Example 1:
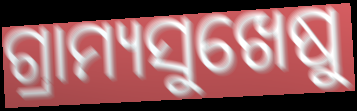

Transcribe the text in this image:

ଗ୍ରାମ୍ୟସୁଖେଷୁ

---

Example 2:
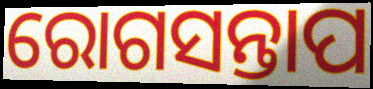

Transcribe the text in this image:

ରୋଗସନ୍ତାପ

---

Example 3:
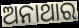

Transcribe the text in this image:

ଅନାଥାର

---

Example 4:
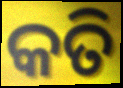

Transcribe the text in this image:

କତି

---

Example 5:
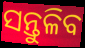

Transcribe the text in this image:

ସନ୍ତୁଳିବ